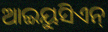
ଆଇୟୁସିଏନ୍